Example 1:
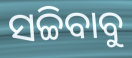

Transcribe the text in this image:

ସଚ୍ଚିବାବୁ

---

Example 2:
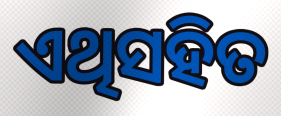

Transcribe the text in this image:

ଏଥିସହିତ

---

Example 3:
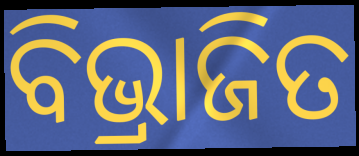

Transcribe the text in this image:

ବିଭ୍ରାଜିତ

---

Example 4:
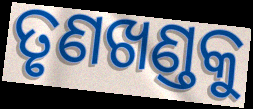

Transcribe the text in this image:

ତୃଣଖଣ୍ଡକୁ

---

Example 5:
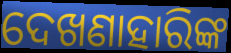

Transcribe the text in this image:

ଦେଖଣାହାରିଙ୍କ